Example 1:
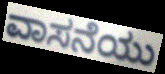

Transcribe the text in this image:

ವಾಸನೆಯು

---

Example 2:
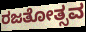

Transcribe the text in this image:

ರಜತೋತ್ಸವ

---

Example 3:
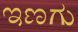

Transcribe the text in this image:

ಇಣಗು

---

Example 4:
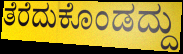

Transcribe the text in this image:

ತೆರೆದುಕೊಂಡದ್ದು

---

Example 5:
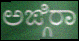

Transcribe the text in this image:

ಅಙ್ಗಿರಾ